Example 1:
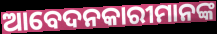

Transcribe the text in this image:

ଆବେଦନକାରୀମାନଙ୍କ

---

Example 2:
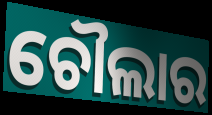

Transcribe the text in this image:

ଚୌଲାର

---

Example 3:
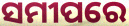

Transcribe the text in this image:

ସମୀପରେ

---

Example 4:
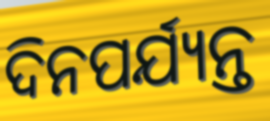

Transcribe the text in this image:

ଦିନପର୍ଯ୍ୟନ୍ତ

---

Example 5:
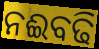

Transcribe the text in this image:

ନଈବଢି